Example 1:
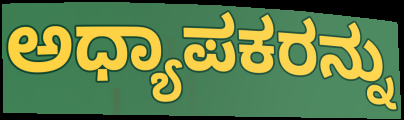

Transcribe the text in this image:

ಅಧ್ಯಾಪಕರನ್ನು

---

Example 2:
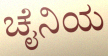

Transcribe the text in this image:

ಚೈನಿಯ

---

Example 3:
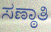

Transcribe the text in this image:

ಸಣ್ಠಾತಿ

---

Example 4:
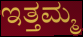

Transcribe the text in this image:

ಇತ್ತಮ್ಮ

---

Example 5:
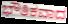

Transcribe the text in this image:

ಭೌತಿಕವಾದ